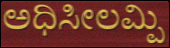
ಅಧಿಸೀಲಮ್ಪಿ